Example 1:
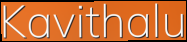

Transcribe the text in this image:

Kavithalu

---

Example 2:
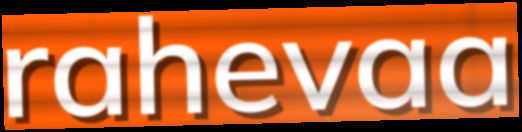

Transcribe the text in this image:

rahevaa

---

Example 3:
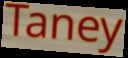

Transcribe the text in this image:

Taney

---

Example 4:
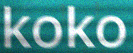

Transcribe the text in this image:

koko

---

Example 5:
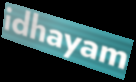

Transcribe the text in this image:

idhayam